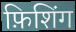
फ़िशिंग